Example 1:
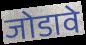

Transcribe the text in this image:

जोडावे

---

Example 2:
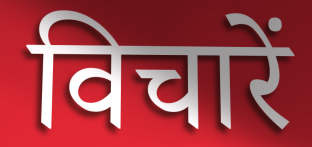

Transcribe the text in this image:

विचारें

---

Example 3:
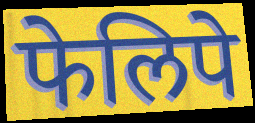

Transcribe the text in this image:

फेलिपे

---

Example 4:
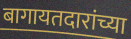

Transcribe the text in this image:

बागायतदारांच्या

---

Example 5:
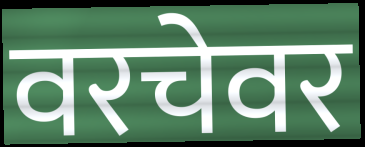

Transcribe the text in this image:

वरचेवर